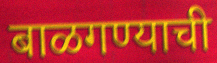
बाळगण्याची